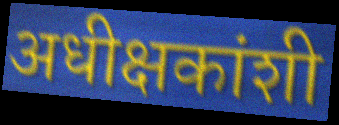
अधीक्षकांशी